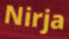
Nirja